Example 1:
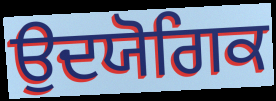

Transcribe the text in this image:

ਉਦਯੋਗਿਕ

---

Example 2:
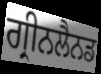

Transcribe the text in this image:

ਗ੍ਰੀਨਲੈਨਡ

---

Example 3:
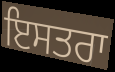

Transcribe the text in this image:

ਇਸਤਰਾ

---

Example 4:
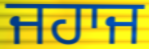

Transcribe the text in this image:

ਜਹਾਜ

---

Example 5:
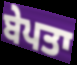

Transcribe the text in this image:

ਬੇਪਤਾ